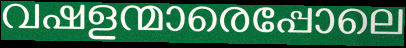
വഷളന്മാരെപ്പോലെ